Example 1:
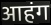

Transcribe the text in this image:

आहंग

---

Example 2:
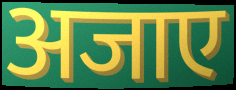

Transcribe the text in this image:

अजाए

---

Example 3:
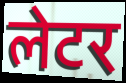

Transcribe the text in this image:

लेटर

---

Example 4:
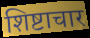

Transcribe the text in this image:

शिष्टाचार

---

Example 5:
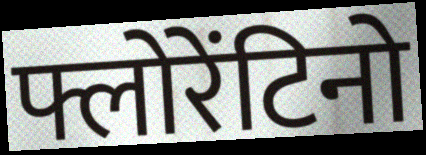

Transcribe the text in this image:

फ्लोरेंटिनो